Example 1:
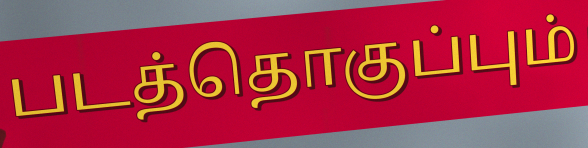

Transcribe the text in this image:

படத்தொகுப்பும்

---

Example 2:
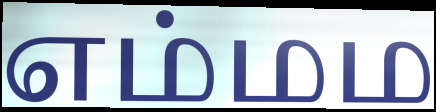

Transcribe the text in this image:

எம்மம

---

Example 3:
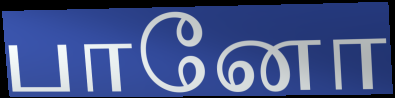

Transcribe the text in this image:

பானோ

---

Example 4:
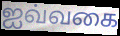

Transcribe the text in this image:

ஐவ்வகை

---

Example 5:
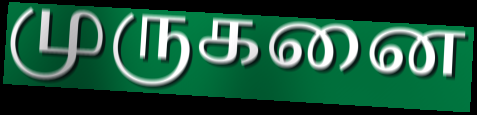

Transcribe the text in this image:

முருகனை